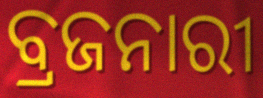
ବ୍ରଜନାରୀ